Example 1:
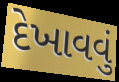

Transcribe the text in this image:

દેખાવવું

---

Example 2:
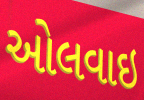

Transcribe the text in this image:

ઓલવાઇ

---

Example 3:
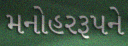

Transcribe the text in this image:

મનોહરરૂપને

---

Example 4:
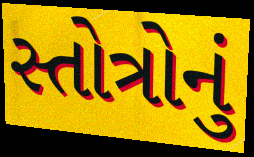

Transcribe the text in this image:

સ્તોત્રોનું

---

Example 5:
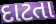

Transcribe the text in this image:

દાટતા